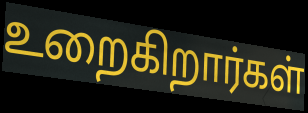
உறைகிறார்கள்